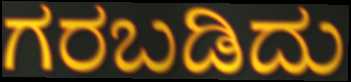
ಗರಬಡಿದು